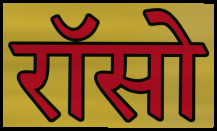
रॉसो